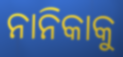
ନାନିକାକୁ